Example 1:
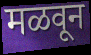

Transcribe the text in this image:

मळवून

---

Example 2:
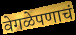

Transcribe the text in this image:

वेगळेपणाचं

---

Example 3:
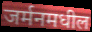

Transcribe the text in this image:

जर्मनमधील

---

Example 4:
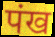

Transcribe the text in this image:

पंख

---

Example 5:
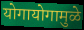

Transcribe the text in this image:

योगायोगामुळे